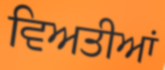
ਵਿਅਤੀਆਂ